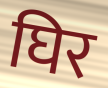
घिर